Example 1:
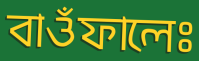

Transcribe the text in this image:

বাওঁফালেঃ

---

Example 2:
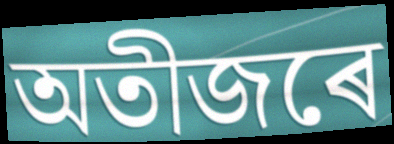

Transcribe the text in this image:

অতীজৰে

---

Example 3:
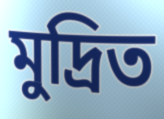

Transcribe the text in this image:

মুদ্ৰিত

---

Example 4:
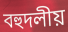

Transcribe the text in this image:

বহুদলীয়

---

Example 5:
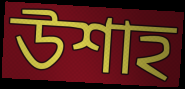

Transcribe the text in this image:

উশাহ